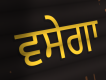
ਵਸੇਗਾ